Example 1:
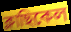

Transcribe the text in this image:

ক্লাছিকেল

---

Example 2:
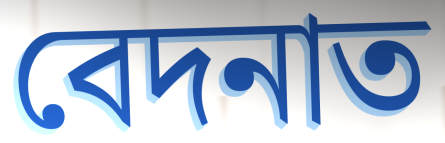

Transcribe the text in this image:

বেদনাত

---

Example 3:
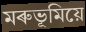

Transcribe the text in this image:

মৰুভূমিয়ে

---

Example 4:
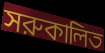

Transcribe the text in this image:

সৰুকালিত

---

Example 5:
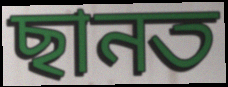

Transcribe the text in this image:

ছানত